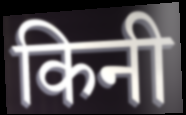
किनी